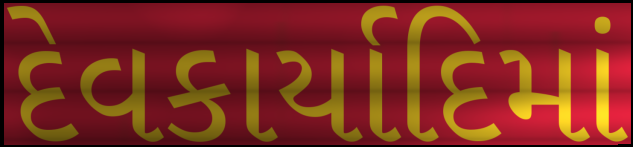
દેવકાર્યાદિમાં